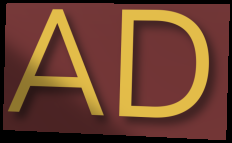
AD